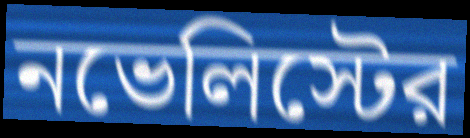
নভেলিস্টের